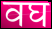
वघ